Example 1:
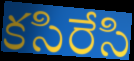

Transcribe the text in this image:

కసిరేసి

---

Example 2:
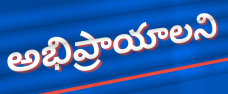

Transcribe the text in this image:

అభిప్రాయాలని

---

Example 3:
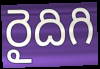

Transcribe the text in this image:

రైదిగి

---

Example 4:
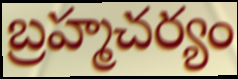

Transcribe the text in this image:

బ్రహ్మచర్యం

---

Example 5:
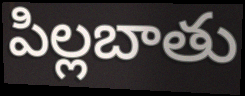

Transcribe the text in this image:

పిల్లబాతు